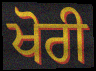
ਖੋਰੀ